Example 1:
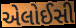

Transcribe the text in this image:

એલોઈસી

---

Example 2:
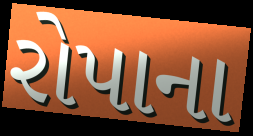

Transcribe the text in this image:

રોપાના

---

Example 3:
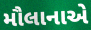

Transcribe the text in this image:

મૌલાનાએ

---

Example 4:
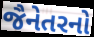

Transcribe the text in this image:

જૈનેતરનો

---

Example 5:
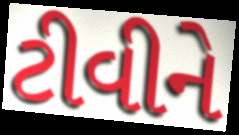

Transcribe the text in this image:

ટીવીને